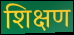
शिक्षण